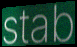
stab